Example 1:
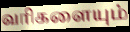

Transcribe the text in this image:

வரிகளையும்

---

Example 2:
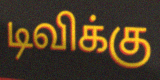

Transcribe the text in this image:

டிவிக்கு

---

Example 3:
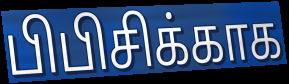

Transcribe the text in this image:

பிபிசிக்காக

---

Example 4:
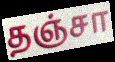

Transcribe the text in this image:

தஞ்சா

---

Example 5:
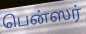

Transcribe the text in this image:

பென்ஸர்